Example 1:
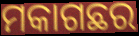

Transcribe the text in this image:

ମକାଗଛର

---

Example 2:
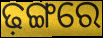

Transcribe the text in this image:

ଢ଼ଙ୍ଗରେ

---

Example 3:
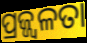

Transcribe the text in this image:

ପ୍ରଜ୍ଜ୍ୱଳତା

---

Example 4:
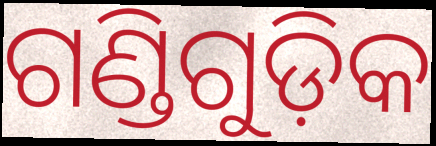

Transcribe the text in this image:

ଗଣ୍ଡିଗୁଡ଼ିକ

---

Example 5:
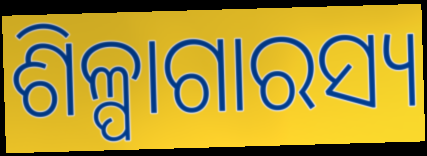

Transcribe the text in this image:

ଶିଳ୍ପାଗାରସ୍ୟ